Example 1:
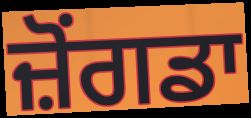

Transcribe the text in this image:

ਜ਼ੋਂਗਡਾ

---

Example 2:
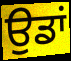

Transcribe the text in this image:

ਉਡਾਂ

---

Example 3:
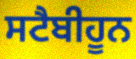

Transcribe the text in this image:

ਸਟੈਬੀਹੂਨ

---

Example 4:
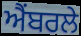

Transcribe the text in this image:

ਐਂਬਰਲੇ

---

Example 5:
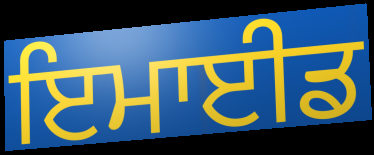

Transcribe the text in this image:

ਇਮਾਈਡ